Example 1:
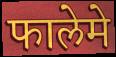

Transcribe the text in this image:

फालेमे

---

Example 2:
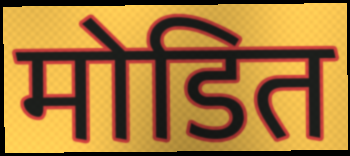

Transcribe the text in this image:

मोडित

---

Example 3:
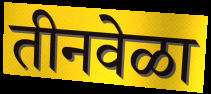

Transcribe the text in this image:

तीनवेळा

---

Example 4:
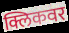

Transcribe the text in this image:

क्लिकवर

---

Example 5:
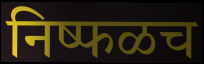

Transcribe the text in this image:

निष्फळच